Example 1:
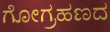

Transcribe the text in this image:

ಗೋಗ್ರಹಣದ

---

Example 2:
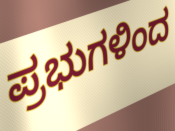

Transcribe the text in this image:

ಪ್ರಭುಗಳಿಂದ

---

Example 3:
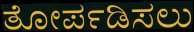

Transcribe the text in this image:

ತೋರ್ಪಡಿಸಲು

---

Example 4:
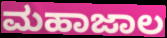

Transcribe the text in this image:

ಮಹಾಜಾಲ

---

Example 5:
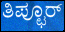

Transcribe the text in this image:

ತಿಪ್ಟೂರ್